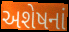
અશેષનાં